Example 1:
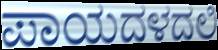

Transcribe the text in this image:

ಪಾಯದಳದಲಿ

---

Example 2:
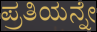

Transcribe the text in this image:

ಪ್ರತಿಯನ್ನೇ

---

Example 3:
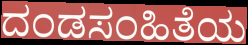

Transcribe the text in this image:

ದಂಡಸಂಹಿತೆಯ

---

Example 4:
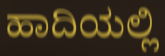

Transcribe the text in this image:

ಹಾದಿಯಲ್ಲಿ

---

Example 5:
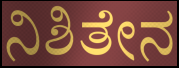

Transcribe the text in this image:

ನಿಶಿತೇನ